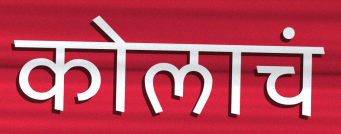
कोलाचं